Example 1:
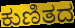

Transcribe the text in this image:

ಕುಣಿತದ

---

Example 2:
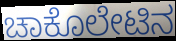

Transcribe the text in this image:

ಚಾಕೊಲೇಟಿನ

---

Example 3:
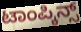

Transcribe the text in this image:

ಟಾಂಪ್ಕಿನ್ಸ್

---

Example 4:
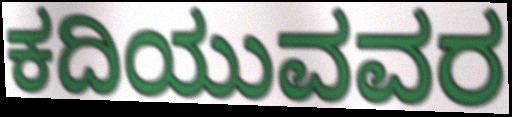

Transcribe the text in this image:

ಕದಿಯುವವರ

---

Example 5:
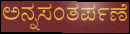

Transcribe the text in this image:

ಅನ್ನಸಂತರ್ಪಣೆ